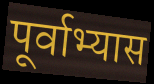
पूर्वाभ्यास